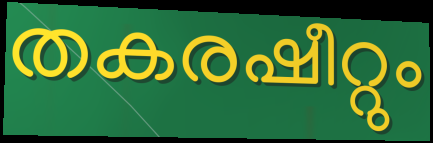
തകരഷീറ്റും